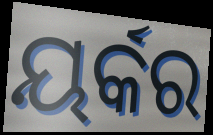
ୟର୍କର